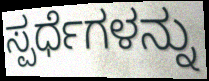
ಸ್ಪರ್ಧೆಗಳನ್ನು